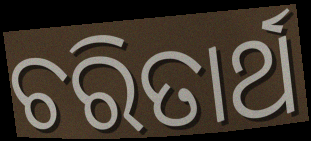
ଚରିତାର୍ଥ